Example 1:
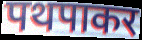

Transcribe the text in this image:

पथपाकर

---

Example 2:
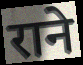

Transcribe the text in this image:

राने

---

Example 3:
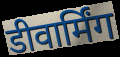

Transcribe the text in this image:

डीवार्मिंग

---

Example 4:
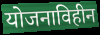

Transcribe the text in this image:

योजनाविहीन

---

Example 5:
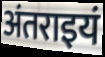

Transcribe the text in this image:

अंतराइयं